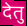
देतु